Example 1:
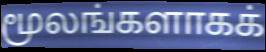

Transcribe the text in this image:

மூலங்களாகக்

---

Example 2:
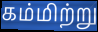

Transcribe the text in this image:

கம்மிற்று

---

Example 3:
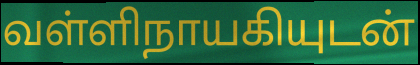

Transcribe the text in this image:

வள்ளிநாயகியுடன்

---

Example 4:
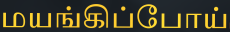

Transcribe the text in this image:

மயங்கிப்போய்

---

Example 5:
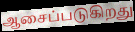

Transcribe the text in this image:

ஆசைப்படுகிறது